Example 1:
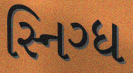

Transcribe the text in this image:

સ્નિગ્ધ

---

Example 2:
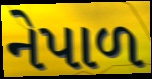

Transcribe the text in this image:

નેપાળ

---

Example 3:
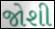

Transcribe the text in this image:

જોશી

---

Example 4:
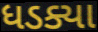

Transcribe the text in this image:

ધડક્યા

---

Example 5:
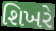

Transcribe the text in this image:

શિખરે